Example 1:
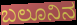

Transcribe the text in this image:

ಬಲೂನಿನ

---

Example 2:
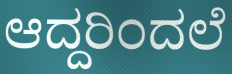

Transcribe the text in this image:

ಆದ್ದರಿಂದಲೆ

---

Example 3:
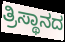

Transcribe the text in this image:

ತ್ರಿಸ್ಥಾನದ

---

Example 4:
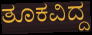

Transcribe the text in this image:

ತೂಕವಿದ್ದ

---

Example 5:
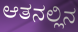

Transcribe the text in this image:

ಆತನಲ್ಲಿನ